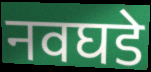
नवघडे